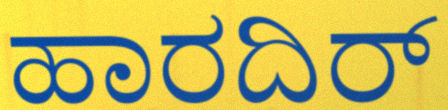
ಹಾರದಿರ್